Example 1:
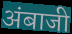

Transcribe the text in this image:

अंबाजी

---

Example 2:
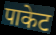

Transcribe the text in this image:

पाकेट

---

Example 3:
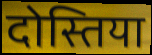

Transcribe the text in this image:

दोस्तिया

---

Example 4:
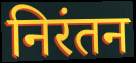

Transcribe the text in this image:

निरंतन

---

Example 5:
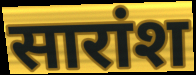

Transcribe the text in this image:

सारांश